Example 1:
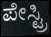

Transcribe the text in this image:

ಪೇಸ್ಟ್ರಿ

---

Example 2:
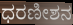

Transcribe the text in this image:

ಧರಣೀಶನ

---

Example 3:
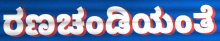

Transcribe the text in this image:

ರಣಚಂಡಿಯಂತೆ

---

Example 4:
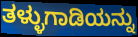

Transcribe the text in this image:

ತಳ್ಳುಗಾಡಿಯನ್ನು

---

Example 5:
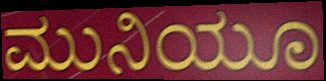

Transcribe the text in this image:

ಮುನಿಯೂ